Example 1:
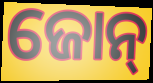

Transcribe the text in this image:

ଜୋନ୍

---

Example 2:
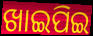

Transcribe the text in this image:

ଖାଇପିଇ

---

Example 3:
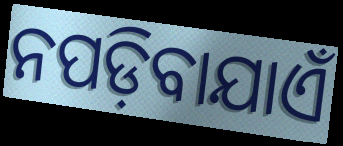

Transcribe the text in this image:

ନପଡ଼ିବାଯାଏଁ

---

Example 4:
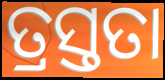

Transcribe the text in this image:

ତ୍ରସ୍ତତା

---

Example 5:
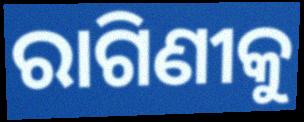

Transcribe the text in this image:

ରାଗିଣୀକୁ